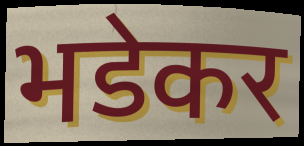
भडेकर